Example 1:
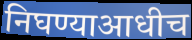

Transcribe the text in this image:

निघण्याआधीच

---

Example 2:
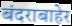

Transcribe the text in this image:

बंदराबाहेर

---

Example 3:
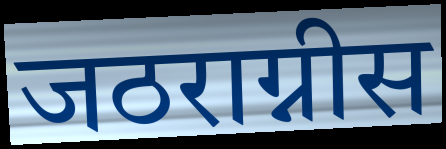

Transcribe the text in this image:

जठराग्नीस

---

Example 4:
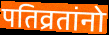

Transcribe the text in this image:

पतिव्रतांनो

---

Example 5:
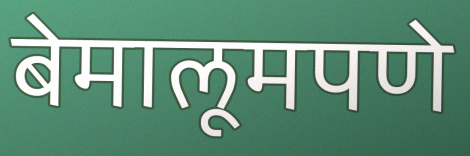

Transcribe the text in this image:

बेमालूमपणे